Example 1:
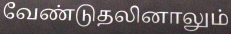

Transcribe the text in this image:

வேண்டுதலினாலும்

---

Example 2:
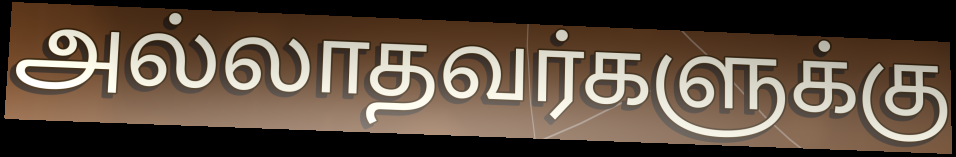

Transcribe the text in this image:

அல்லாதவர்களுக்கு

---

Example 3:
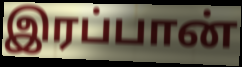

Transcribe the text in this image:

இரப்பான்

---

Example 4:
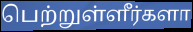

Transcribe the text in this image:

பெற்றுள்ளீர்களா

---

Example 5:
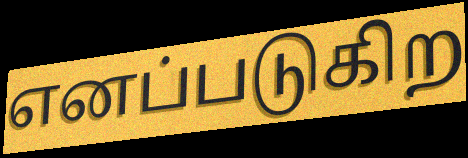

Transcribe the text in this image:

எனப்படுகிற